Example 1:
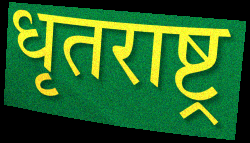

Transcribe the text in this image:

धृतराष्ट्र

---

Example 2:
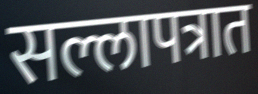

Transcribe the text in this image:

सल्लापत्रात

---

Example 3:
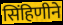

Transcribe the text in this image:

सिंहिणीने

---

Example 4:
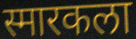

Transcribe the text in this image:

स्मारकला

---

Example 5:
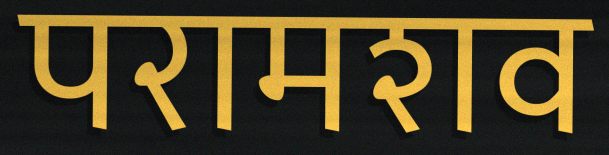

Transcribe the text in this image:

परामशव